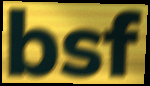
bsf